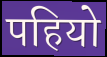
पहियो